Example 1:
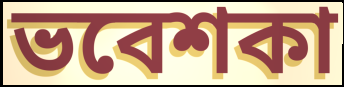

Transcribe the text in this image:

ভবেশকা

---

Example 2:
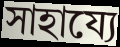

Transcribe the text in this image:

সাহায্যে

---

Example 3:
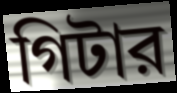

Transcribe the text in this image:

গিটার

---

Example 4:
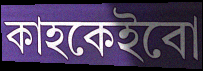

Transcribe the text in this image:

কাহকেইবো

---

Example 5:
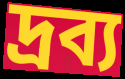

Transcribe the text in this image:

দ্রব্য